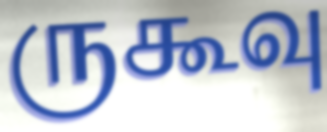
ருகூவு